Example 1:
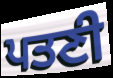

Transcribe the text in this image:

ਪਤਣੀ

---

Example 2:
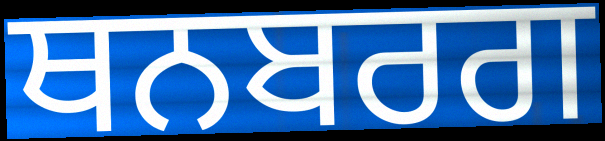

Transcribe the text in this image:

ਥਨਬਰਗ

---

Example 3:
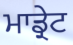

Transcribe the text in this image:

ਮਾਡ੍ਰੇਟ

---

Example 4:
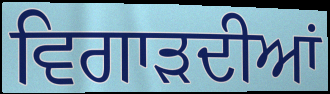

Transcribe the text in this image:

ਵਿਗਾੜਦੀਆਂ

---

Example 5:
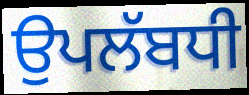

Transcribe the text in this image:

ਉਪਲੱਬਧੀ